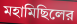
মহামিছিলের